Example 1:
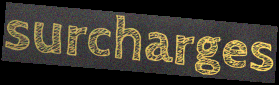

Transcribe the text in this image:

surcharges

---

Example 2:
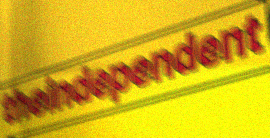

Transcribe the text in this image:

theindependent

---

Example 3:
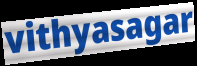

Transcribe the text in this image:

vithyasagar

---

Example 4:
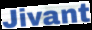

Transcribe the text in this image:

Jivant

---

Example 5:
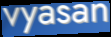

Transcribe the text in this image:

vyasan